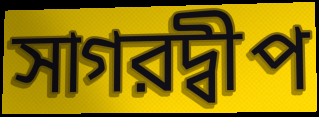
সাগরদ্বীপ